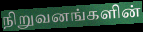
நிறுவனங்களின்